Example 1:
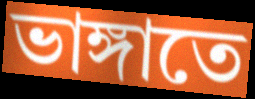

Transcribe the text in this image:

ভাঙ্গাতে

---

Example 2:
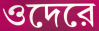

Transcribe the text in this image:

ওদেরে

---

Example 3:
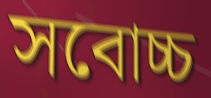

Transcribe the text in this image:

সবোচ্চ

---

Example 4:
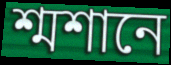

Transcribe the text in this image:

শ্মশানে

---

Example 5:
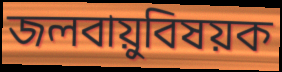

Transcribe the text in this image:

জলবায়ুবিষয়ক